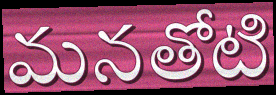
మనతోటి